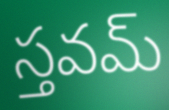
స్తవమ్